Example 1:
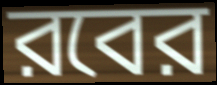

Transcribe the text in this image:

রবের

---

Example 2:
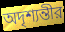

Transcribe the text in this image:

অদৃশ্যন্তীর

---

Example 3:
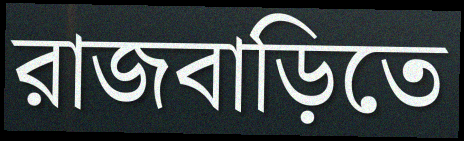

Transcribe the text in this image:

রাজবাড়িতে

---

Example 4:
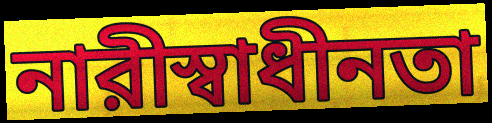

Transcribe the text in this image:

নারীস্বাধীনতা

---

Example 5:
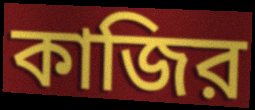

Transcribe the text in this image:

কাজির